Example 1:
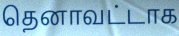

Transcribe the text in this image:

தெனாவட்டாக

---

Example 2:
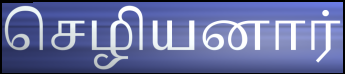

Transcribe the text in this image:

செழியனார்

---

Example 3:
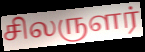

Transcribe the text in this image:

சிலருளர்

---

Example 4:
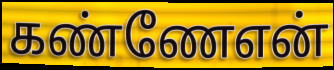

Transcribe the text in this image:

கண்ணேஎன்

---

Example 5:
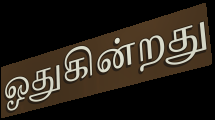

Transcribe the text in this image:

ஓதுகின்றது